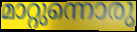
മാറ്റുന്നൊരു